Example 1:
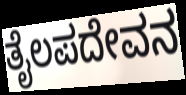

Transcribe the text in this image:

ತೈಲಪದೇವನ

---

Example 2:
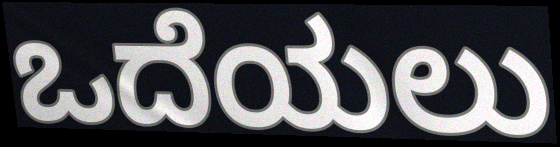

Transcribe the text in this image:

ಒದೆಯಲು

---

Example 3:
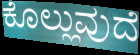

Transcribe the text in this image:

ಕೊಲ್ಲುವುದೆ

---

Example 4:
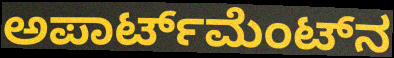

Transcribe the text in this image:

ಅಪಾರ್ಟ್‌ಮೆಂಟ್‌ನ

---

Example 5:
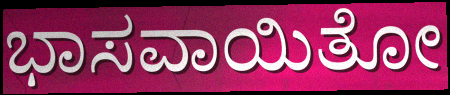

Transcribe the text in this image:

ಭಾಸವಾಯಿತೋ